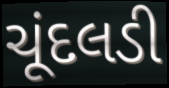
ચૂંદલડી